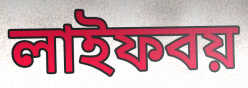
লাইফবয়